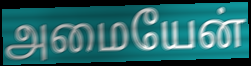
அமையேன்